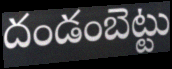
దండంబెట్టు